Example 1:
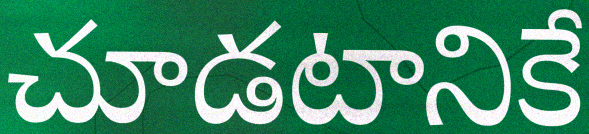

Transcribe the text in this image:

చూడటానికే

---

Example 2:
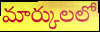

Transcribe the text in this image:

మార్కులలో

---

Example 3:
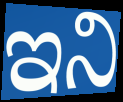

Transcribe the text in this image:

ఇని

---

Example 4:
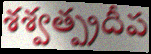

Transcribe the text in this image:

శశ్వత్ప్రదీప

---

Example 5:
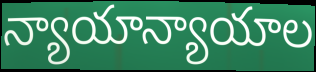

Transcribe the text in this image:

న్యాయాన్యాయాల